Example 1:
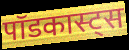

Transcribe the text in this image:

पॉडकास्ट्स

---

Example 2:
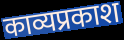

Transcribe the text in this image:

काव्यप्रकाश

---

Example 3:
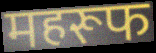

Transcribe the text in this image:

महरूफ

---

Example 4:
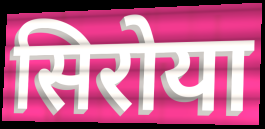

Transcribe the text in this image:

सिरोया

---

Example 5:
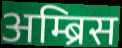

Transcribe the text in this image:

अम्ब्रिस